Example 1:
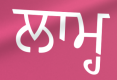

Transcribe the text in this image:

ਲਾਮ੍ਹ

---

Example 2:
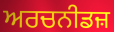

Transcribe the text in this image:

ਅਰਚਨੀਡਜ਼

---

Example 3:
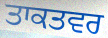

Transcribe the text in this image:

ਤਾਕਤਵਰ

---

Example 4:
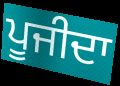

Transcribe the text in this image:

ਪੂਜੀਦਾ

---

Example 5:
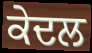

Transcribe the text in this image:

ਕੇਦਲ